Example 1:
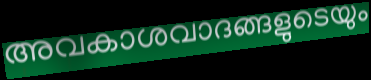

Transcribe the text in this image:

അവകാശവാദങ്ങളുടെയും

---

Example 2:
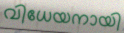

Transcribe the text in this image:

വിധേയനായി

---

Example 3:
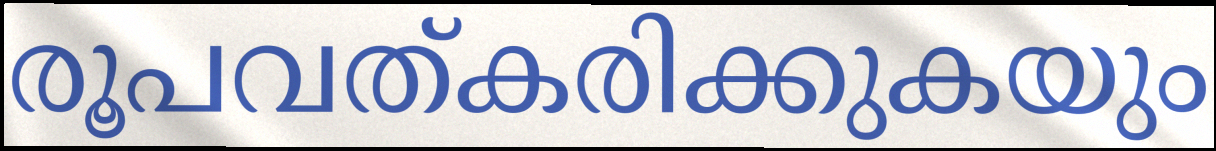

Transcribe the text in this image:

രൂപവത്കരിക്കുകയും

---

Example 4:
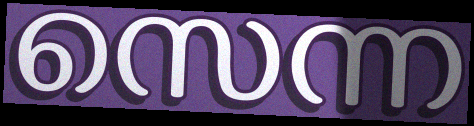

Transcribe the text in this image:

സെന്ന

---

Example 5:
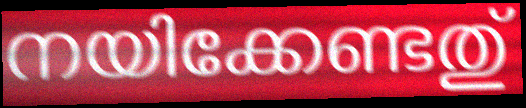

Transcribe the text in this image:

നയിക്കേണ്ടതു്